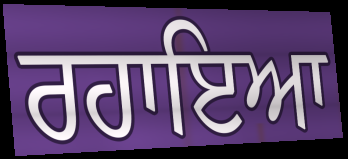
ਰਹਾਇਆ